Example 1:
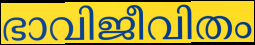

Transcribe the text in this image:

ഭാവിജീവിതം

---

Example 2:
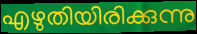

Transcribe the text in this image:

എഴുതിയിരിക്കുന്നു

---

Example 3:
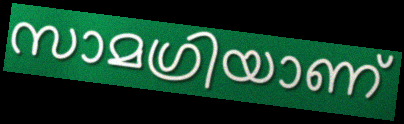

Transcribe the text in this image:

സാമഗ്രിയാണ്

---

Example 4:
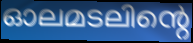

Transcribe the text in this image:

ഓലമടലിന്റെ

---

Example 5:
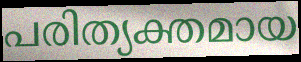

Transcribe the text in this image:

പരിത്യക്തമായ